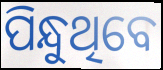
ପିନ୍ଧୁଥିବେ